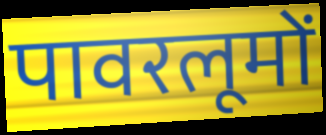
पावरलूमों